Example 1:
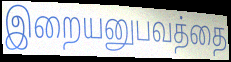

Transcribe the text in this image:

இறையனுபவத்தை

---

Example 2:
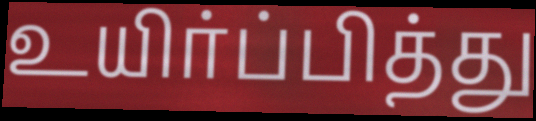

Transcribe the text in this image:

உயிர்ப்பித்து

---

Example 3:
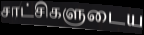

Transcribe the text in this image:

சாட்சிகளுடைய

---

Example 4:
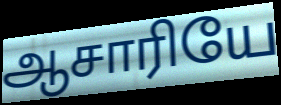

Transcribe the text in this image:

ஆசாரியே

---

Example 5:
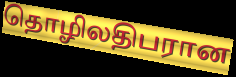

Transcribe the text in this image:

தொழிலதிபரான